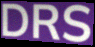
DRS